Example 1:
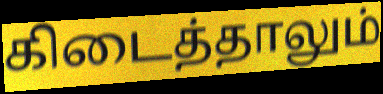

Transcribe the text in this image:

கிடைத்தாலும்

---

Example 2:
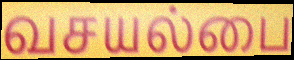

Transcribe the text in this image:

வசயல்பை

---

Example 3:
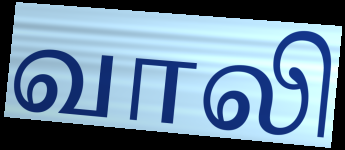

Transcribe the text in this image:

வாலி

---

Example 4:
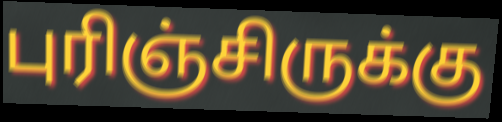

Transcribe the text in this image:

புரிஞ்சிருக்கு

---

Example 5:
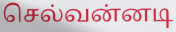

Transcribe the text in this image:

செல்வன்னடி